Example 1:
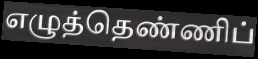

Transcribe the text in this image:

எழுத்தெண்ணிப்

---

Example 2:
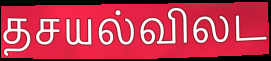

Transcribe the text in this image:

தசயல்விலட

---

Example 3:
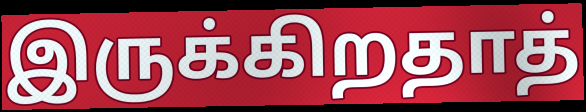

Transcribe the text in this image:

இருக்கிறதாத்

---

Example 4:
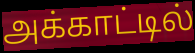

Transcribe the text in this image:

அக்காட்டில்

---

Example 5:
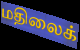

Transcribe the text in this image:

மதிலைக்